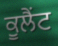
ਕੂਲੈਂਟ